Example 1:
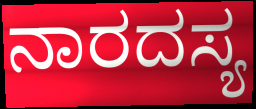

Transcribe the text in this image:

ನಾರದಸ್ಯ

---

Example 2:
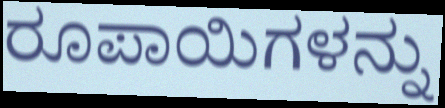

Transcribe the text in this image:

ರೂಪಾಯಿಗಳನ್ನು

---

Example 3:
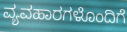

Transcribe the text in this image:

ವ್ಯವಹಾರಗಳೊಂದಿಗೆ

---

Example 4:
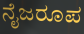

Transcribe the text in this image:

ನೈಜರೂಪ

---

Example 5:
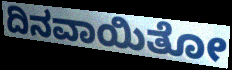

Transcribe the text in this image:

ದಿನವಾಯಿತೋ